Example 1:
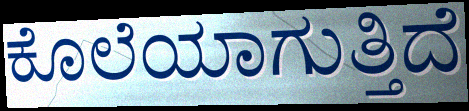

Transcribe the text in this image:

ಕೊಲೆಯಾಗುತ್ತಿದೆ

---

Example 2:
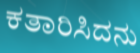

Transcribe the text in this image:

ಕತಾರಿಸಿದನು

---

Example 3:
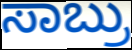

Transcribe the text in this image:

ಸಾಬ್ರು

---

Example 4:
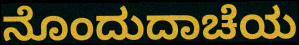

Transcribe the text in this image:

ನೊಂದುದಾಚೆಯ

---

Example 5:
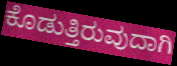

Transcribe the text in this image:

ಕೊಡುತ್ತಿರುವುದಾಗಿ